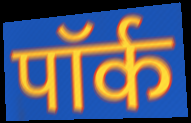
पॉर्क